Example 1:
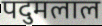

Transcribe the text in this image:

पदुमलाल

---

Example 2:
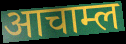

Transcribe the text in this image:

आचाम्ल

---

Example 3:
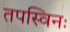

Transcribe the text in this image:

तपस्विनः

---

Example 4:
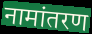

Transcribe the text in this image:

नामांतरण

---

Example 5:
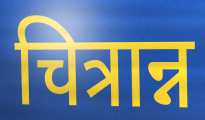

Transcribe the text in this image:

चित्रान्न